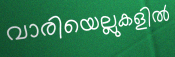
വാരിയെല്ലുകളിൽ